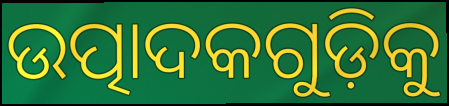
ଉତ୍ପାଦକଗୁଡ଼ିକୁ